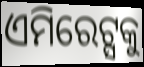
ଏମିରେଟ୍ସକୁ